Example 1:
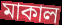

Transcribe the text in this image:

মাকাল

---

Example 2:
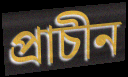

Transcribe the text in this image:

প্রাচীন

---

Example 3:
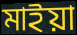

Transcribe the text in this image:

মাইয়া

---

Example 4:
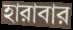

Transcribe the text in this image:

হারাবার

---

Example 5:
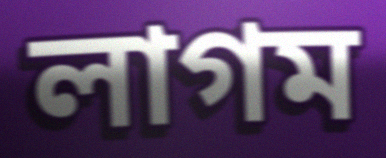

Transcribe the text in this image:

লাগম